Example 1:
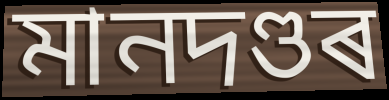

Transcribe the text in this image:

মানদণ্ডৰ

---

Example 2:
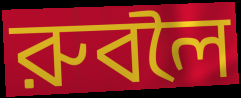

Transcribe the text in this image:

ৰুবলৈ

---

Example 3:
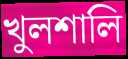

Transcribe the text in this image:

খুলশালি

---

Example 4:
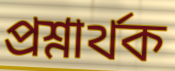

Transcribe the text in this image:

প্ৰশ্নাৰ্থক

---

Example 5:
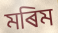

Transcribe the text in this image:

মৰিম